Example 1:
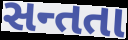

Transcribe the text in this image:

સન્તતા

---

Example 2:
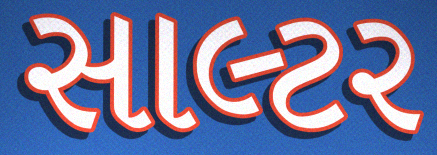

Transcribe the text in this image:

સાલ્ટર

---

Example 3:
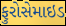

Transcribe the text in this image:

ફુરોસેમાઇડ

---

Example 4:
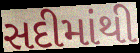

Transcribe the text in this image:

સદીમાંથી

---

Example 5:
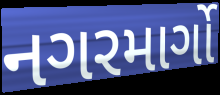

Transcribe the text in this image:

નગરમાર્ગો